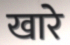
खारे